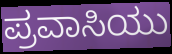
ಪ್ರವಾಸಿಯು